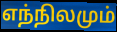
எந்நிலமும்